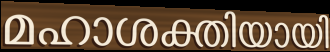
മഹാശക്തിയായി